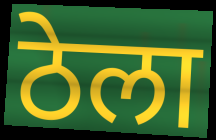
ठेला